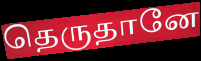
தெருதானே